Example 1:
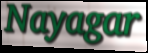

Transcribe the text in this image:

Nayagar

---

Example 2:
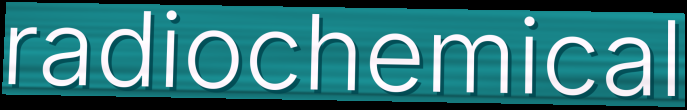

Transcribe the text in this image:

radiochemical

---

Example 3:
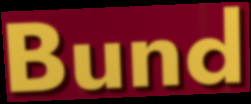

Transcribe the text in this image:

Bund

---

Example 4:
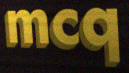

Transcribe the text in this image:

mcq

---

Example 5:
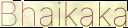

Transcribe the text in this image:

Bhaikaka